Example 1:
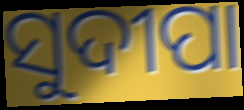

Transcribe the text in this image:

ସୁଦୀପା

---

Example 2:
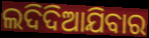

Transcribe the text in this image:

ଲଦିଦିଆଯିବାର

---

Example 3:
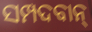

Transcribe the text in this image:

ସମ୍ପଦବାନ୍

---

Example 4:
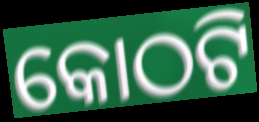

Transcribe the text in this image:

କୋଠଟି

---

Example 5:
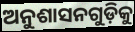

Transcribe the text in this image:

ଅନୁଶାସନଗୁଡ଼ିକୁ